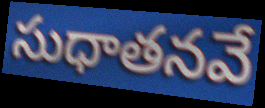
సుధాతనవే